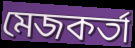
মেজকর্তা